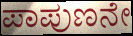
ಪಾಪುಣನೇ